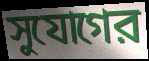
সুযোগের